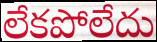
లేకపోలేదు